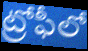
ట్రోఫీలో